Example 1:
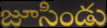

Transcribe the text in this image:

జూసిండు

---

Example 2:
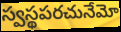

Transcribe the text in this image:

స్వస్థపరచునేమో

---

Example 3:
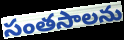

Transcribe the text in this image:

సంతసాలను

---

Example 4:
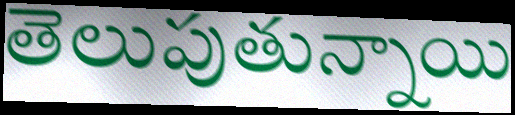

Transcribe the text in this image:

తెలుపుతున్నాయి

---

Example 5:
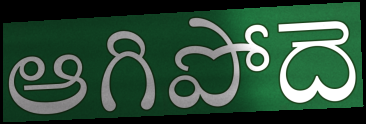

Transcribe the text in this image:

ఆగిపోదె